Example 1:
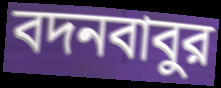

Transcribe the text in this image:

বদনবাবুর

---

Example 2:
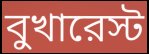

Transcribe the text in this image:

বুখারেস্ট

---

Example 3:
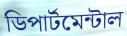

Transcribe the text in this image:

ডিপার্টমেন্টাল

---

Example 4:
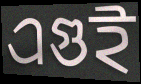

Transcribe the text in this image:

এগুই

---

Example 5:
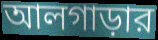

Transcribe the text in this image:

আলগাড়ার